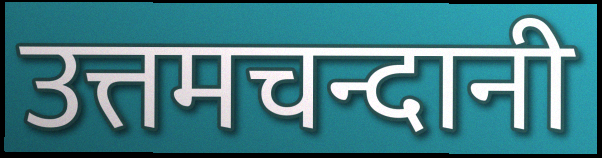
उत्तमचन्दानी